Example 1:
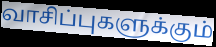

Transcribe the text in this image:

வாசிப்புகளுக்கும்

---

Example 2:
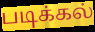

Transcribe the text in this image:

படிக்கல்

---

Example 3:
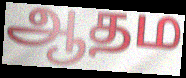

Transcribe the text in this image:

ஆதம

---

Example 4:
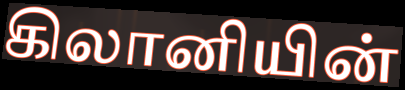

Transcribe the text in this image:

கிலானியின்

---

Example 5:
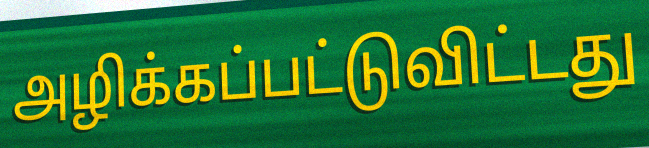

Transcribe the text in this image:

அழிக்கப்பட்டுவிட்டது